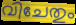
വിചേതും